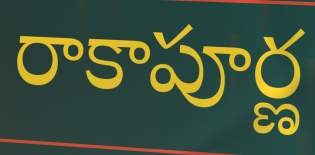
రాకాపూర్ణ